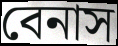
বেনাস